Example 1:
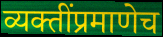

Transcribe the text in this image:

व्यक्तींप्रमाणेच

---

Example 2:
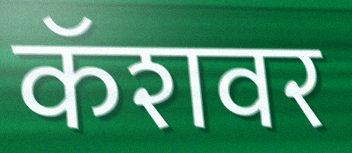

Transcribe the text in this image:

कॅशवर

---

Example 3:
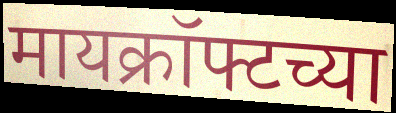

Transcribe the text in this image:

मायक्रॉफ्टच्या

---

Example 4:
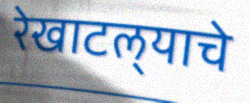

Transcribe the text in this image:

रेखाटल्याचे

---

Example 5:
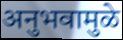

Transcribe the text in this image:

अनुभवामुळे